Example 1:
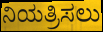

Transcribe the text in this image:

ನಿಯತ್ರಿಸಲು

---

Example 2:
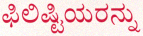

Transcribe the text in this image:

ಫಿಲಿಷ್ಟಿಯರನ್ನು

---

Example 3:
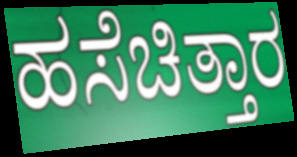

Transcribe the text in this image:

ಹಸೆಚಿತ್ತಾರ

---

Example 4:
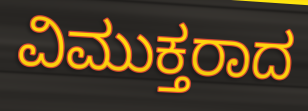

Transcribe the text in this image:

ವಿಮುಕ್ತರಾದ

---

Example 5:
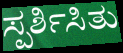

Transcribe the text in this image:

ಸ್ಪರ್ಶಿಸಿತು